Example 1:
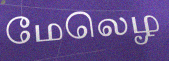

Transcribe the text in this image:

மேலெழ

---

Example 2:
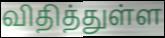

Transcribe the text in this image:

விதித்துள்ள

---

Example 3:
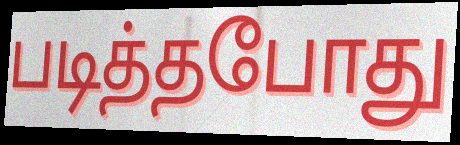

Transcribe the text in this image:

படித்தபோது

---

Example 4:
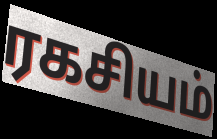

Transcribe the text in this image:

ரகசியம்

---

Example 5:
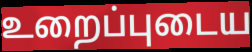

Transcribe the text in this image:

உறைப்புடைய